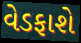
વેડફાશે